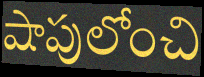
షాపులోంచి